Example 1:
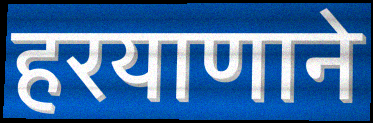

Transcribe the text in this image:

हरयाणाने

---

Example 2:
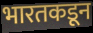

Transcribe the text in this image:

भारतकडून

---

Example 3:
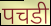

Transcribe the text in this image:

पचडी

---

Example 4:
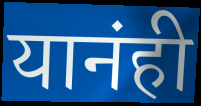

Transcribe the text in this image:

यानंही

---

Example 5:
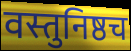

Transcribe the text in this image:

वस्तुनिष्ठच